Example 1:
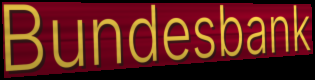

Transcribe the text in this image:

Bundesbank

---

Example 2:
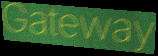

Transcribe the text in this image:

Gateway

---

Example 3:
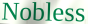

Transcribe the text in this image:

Nobless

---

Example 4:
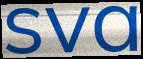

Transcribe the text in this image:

sva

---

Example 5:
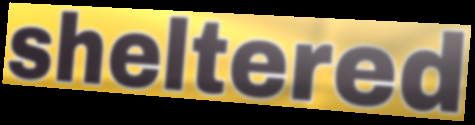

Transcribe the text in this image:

sheltered